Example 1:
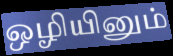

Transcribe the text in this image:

ஒழியினும்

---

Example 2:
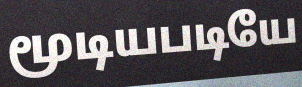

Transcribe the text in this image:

மூடியபடியே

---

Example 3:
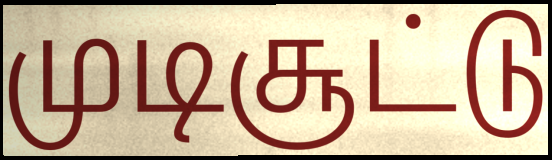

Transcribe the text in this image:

முடிசூட்டு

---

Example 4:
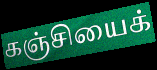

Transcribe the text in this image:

கஞ்சியைக்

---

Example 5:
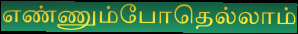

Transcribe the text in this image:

எண்ணும்போதெல்லாம்